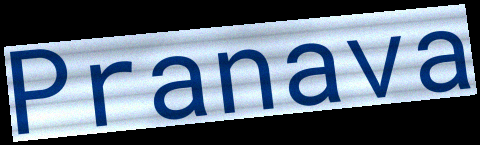
Pranava